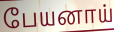
பேயனாய்